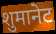
शुमानेट